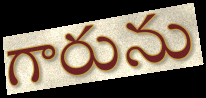
గారును